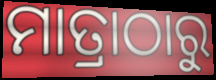
ମାତ୍ରାଠାରୁ